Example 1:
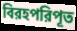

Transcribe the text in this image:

বিরহপরিপূত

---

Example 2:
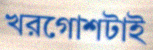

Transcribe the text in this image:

খরগোশটাই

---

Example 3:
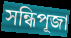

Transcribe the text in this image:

সন্ধিপূজা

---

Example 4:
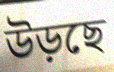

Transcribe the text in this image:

উড়ছে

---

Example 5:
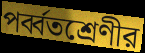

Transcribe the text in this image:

পর্ব্বতশ্রেণীর